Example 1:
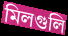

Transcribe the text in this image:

মিলগুলি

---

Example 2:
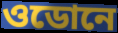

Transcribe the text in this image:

ওডোনে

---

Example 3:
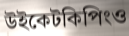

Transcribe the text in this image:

উইকেটকিপিংও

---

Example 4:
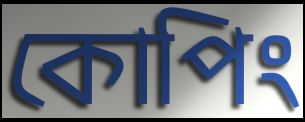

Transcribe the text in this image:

কোপিং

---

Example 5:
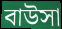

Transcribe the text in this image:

বাউসা